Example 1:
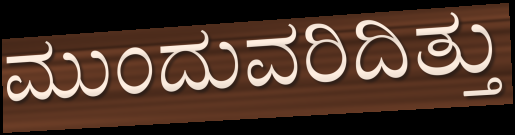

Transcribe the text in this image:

ಮುಂದುವರಿದಿತ್ತು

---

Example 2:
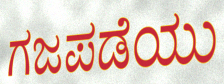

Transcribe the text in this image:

ಗಜಪಡೆಯು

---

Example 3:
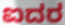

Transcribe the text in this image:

ಐದರ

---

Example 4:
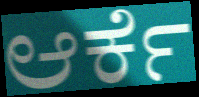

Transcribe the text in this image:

ಆರ್ಕೆ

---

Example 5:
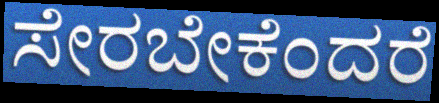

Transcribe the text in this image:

ಸೇರಬೇಕೆಂದರೆ